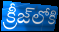
క్రీజ్‌లోకి